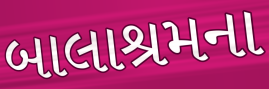
બાલાશ્રમના